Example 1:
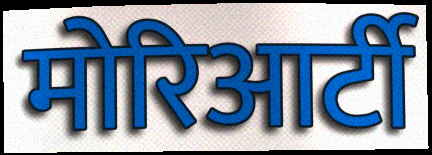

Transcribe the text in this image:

मोरिआर्टी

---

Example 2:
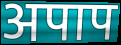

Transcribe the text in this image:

अपाप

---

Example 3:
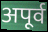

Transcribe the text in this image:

अपूर्व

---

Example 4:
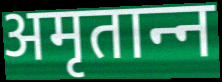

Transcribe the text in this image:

अमृतान्न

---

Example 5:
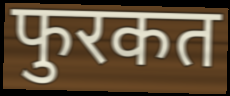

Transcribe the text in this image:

फुरकत